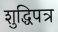
शुद्धिपत्र